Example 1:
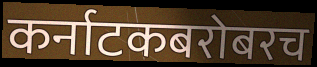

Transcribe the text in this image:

कर्नाटकबरोबरच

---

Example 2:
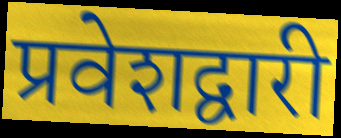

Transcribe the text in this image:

प्रवेशद्वारी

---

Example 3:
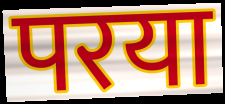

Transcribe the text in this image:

परया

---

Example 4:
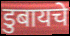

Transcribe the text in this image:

डुबायचे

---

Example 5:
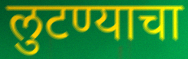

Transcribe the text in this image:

लुटण्याचा